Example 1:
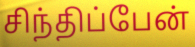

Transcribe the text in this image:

சிந்திப்பேன்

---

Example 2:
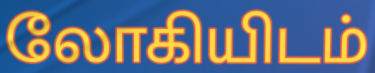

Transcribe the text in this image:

லோகியிடம்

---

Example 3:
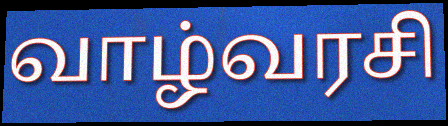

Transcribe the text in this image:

வாழ்வரசி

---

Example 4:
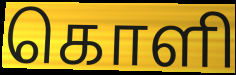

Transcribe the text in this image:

கொளி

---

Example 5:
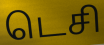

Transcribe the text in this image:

டெசி